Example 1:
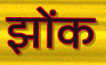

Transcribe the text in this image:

झोंक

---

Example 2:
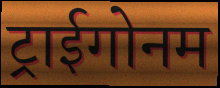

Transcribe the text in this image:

ट्राईगोनम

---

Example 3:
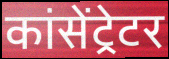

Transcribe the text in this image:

कांसेंट्रेटर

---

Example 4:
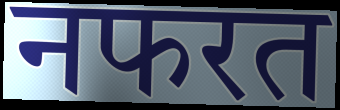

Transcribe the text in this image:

नफरत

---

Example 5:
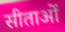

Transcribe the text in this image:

सीताओं